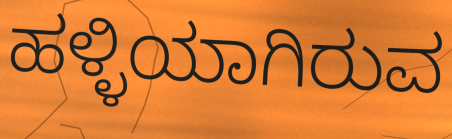
ಹಳ್ಳಿಯಾಗಿರುವ